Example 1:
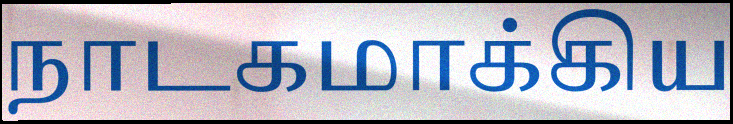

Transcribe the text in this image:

நாடகமாக்கிய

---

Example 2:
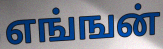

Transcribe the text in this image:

எங்ஙன்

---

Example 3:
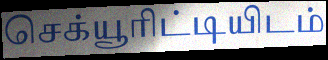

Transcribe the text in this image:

செக்யூரிட்டியிடம்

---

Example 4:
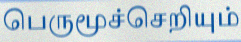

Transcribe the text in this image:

பெருமூச்செறியும்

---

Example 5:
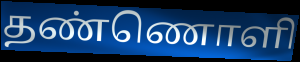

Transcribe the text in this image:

தண்ணொளி